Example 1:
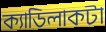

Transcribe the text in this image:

ক্যাডিলাকটা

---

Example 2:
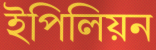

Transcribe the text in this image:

ইপিলিয়ন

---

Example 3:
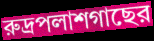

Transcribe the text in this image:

রুদ্রপলাশগাছের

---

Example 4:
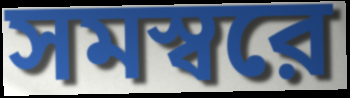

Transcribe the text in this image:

সমস্বরে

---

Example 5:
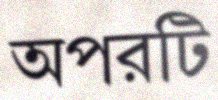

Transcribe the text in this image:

অপরটি